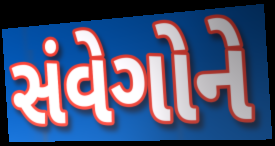
સંવેગોને